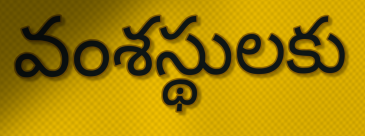
వంశస్థులకు